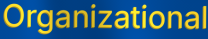
Organizational